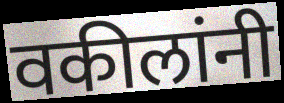
वकीलांनी